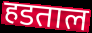
हडताल